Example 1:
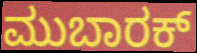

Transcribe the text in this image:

ಮುಬಾರಕ್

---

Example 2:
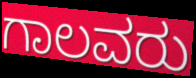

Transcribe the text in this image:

ಗಾಲವರು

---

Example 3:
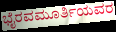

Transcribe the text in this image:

ಭೈರವಮೂರ್ತಿಯವರ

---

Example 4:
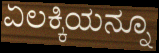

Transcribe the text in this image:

ಏಲಕ್ಕಿಯನ್ನೂ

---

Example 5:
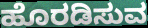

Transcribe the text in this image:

ಹೊರಡಿಸುವ